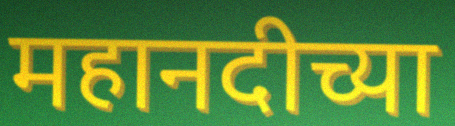
महानदीच्या